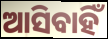
ଆସିବାହିଁ